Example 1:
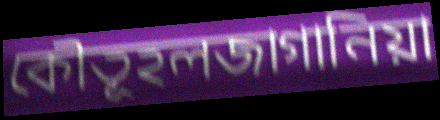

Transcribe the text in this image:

কৌতূহলজাগানিয়া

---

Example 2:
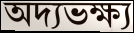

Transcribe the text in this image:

অদ্যভক্ষ্য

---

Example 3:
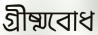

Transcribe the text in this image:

গ্রীষ্মবোধ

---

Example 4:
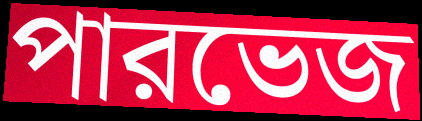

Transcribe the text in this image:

পারভেজ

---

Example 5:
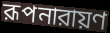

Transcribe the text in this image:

রূপনারায়ণ